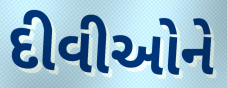
દીવીઓને